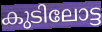
കുടിലോട്ട